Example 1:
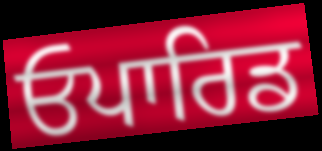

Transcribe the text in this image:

ਓਪਾਰਿਡ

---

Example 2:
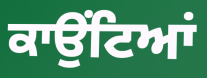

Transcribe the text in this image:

ਕਾਉਂਟਿਆਂ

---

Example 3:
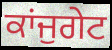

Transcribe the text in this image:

ਕਾਂਜੁਗੇਟ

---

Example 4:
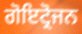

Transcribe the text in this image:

ਗੋਇਟ੍ਰੋਜਨ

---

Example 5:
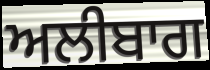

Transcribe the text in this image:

ਅਲੀਬਾਗ